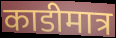
काडीमात्र